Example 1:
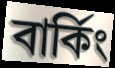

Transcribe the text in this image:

বার্কিং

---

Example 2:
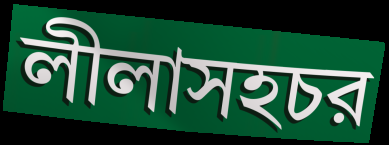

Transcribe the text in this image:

লীলাসহচর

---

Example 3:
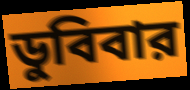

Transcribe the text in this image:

ডুবিবার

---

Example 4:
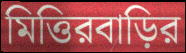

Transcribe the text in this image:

মিত্তিরবাড়ির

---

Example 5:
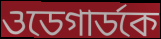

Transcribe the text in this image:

ওডেগার্ডকে